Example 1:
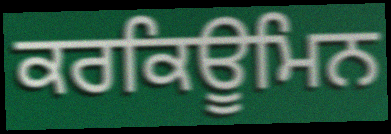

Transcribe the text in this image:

ਕਰਕਿਊਮਿਨ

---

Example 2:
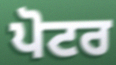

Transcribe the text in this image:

ਪੋਟਰ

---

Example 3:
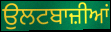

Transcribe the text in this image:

ਉਲਟਬਾਜ਼ੀਆਂ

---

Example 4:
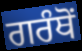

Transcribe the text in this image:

ਗਰੰਥੋਂ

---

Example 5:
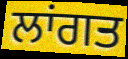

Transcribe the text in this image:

ਲਾਂਗਤ